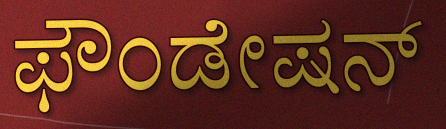
ಫೌಂಡೇಷನ್